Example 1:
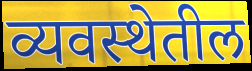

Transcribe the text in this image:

व्यवस्थेतील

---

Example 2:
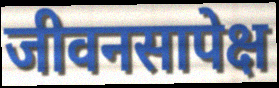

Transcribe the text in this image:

जीवनसापेक्ष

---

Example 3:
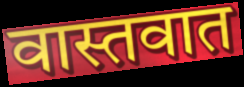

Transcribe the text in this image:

वास्तवात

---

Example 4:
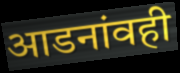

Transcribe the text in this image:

आडनांवही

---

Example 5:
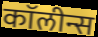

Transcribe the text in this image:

कॉलीन्स